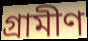
গ্রামীণ